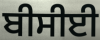
ਬੀਸੀਈ